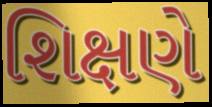
શિક્ષણે